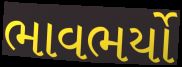
ભાવભર્યો